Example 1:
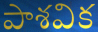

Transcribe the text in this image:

పాశవిక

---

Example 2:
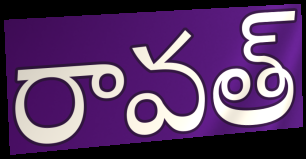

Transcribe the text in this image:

రావత్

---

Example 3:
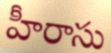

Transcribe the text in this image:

హీరాసు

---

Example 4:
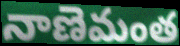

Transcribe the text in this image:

నాణెమంత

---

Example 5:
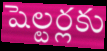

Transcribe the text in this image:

షెల్టర్లకు